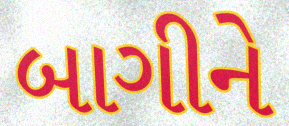
બાગીને